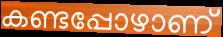
കണ്ടപ്പോഴാണ്